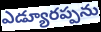
ఎడ్యూరప్పను